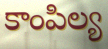
కాంపిల్య